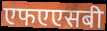
एफएएसबी